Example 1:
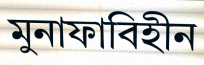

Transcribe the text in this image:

মুনাফাবিহীন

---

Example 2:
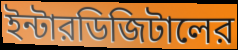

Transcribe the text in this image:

ইন্টারডিজিটালের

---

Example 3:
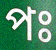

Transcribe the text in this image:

পঃ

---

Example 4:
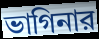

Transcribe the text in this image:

ভাগিনার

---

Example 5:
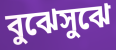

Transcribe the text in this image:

বুঝেসুঝে